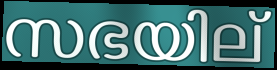
സഭയില്